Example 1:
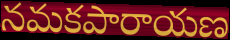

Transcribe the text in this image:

నమకపారాయణ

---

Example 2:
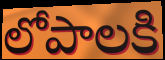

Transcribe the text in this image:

లోపాలకి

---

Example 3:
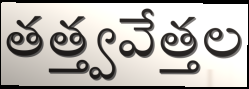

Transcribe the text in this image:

తత్త్వవేత్తల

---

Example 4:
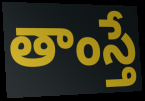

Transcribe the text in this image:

తాంస్తే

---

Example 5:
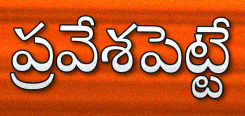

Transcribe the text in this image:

ప్రవేశపెట్టే